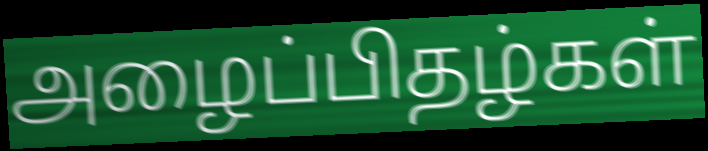
அழைப்பிதழ்கள்